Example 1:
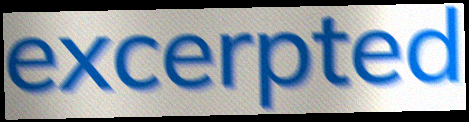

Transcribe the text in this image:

excerpted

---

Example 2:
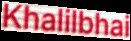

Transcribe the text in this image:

Khalilbhai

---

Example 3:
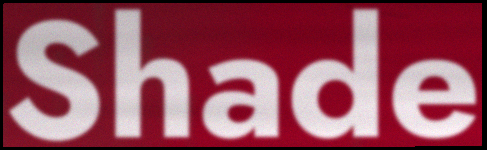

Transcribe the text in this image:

Shade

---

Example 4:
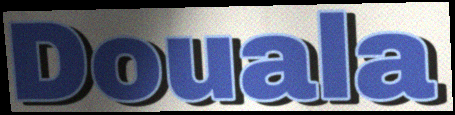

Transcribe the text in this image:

Douala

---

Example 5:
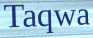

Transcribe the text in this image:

Taqwa